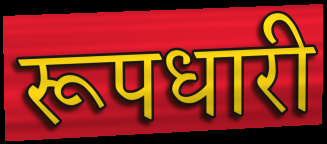
रूपधारी